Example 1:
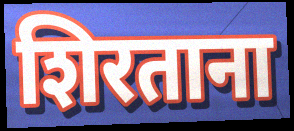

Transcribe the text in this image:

शिरताना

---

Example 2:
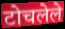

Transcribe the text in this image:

टोचलेले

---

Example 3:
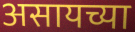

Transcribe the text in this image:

असायच्या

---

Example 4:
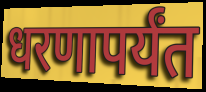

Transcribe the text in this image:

धरणापर्यंत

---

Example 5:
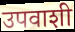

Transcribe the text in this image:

उपवाशी